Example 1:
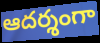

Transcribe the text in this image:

ఆదర్శంగా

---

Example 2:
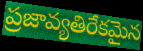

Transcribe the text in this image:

ప్రజావ్యతిరేకమైన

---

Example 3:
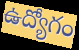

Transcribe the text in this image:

ఉద్యోగం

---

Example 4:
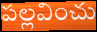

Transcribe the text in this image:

పల్లవించు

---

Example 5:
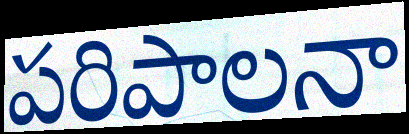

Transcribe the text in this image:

పరిపాలనా